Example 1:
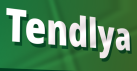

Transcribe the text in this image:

Tendlya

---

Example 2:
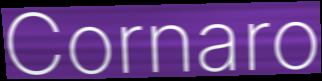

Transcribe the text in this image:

Cornaro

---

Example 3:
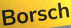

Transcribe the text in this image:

Borsch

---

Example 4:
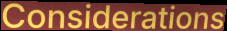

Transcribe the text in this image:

Considerations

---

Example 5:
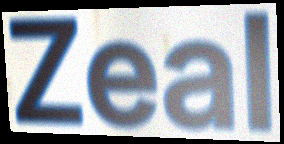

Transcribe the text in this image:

Zeal